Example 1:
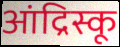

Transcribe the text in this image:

आंद्रिस्कू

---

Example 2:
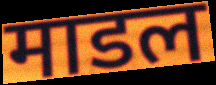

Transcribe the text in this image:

माडल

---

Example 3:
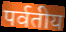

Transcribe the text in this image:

पर्वतीय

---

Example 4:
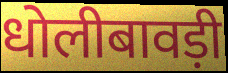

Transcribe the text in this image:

धोलीबावड़ी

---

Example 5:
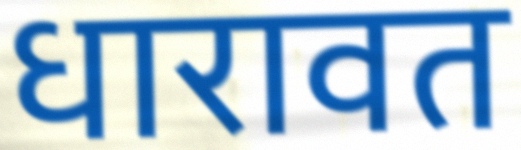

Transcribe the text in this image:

धारावत